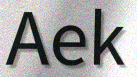
Aek